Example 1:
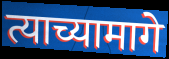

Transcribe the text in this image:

त्याच्यामागे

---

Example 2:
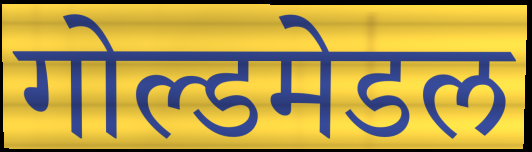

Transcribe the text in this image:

गोल्डमेडल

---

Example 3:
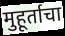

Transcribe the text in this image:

मुहूर्ताचा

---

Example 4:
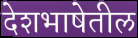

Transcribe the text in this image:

देशभाषेतील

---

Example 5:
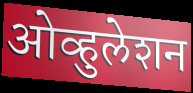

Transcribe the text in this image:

ओव्हुलेशन